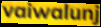
vaiwalunj